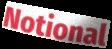
Notional